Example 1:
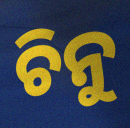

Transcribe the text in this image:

ଚିନୁ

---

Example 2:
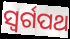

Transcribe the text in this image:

ସ୍ୱର୍ଗପଥ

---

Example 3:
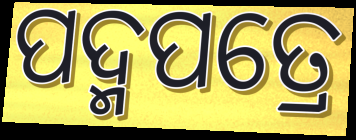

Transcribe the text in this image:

ପଦ୍ମପତ୍ରେ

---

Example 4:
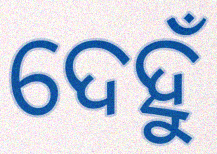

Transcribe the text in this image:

ଦେହୁଁ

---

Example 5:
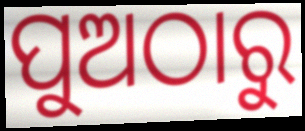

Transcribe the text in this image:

ପୁଅଠାରୁ